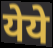
येये